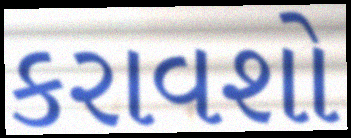
કરાવશો